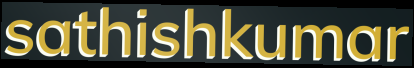
sathishkumar